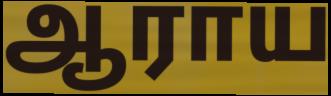
ஆராய